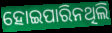
ହୋଇପାରିନଥିଲି